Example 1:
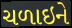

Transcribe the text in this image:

ચળાઇને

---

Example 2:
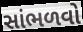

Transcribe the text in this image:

સાંભળવો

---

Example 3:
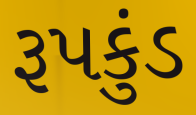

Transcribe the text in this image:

રૂપકુંડ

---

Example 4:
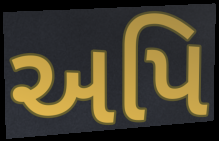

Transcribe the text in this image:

અપિ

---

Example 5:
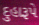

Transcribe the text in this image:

દુહારૂપે